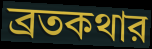
ব্রতকথার